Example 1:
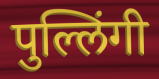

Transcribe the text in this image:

पुल्लिंगी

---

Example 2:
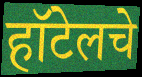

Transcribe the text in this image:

हॉटेलचे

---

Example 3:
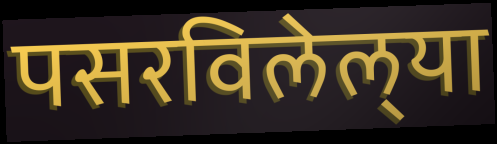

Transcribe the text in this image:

पसरविलेल्या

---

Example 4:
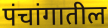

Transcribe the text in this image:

पंचांगातील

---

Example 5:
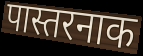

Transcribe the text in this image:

पास्तरनाक